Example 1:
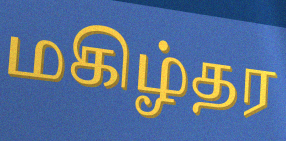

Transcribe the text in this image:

மகிழ்தர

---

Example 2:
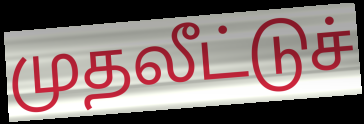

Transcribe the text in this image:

முதலீட்டுச்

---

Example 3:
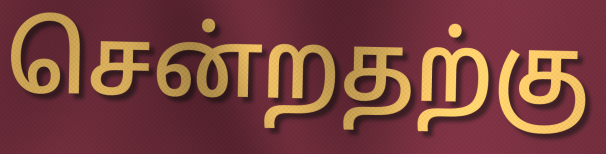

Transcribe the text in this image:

சென்றதற்கு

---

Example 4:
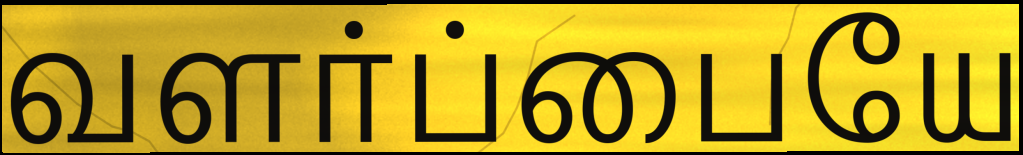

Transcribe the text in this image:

வளர்ப்பையே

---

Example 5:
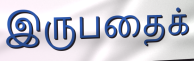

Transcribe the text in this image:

இருபதைக்